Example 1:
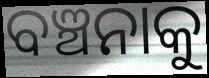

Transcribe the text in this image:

ବଞ୍ଚନାକୁ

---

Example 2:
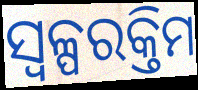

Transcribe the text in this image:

ସ୍ୱଳ୍ପରକ୍ତିମ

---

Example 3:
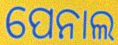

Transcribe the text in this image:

ପେନାଲ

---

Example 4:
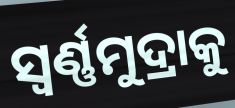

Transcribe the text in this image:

ସ୍ଵର୍ଣ୍ଣମୁଦ୍ରାକୁ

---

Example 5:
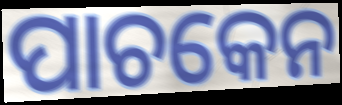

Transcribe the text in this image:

ପାଚକେନ